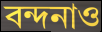
বন্দনাও